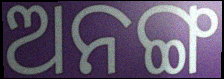
ଅନଙ୍ଗ